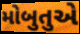
મોબુતુએ